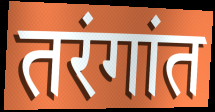
तरंगांत